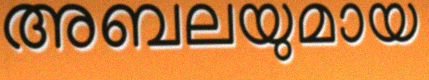
അബലയുമായ